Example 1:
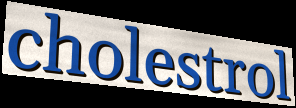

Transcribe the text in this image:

cholestrol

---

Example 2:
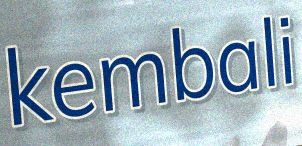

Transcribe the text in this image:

kembali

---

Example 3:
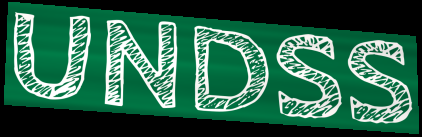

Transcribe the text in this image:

UNDSS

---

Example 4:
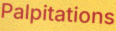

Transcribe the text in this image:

Palpitations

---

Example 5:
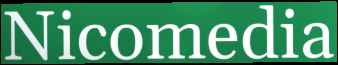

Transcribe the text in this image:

Nicomedia